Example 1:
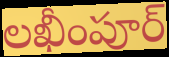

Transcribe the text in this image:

లఖీంపూర్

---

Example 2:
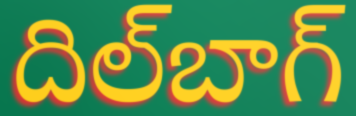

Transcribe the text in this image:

దిల్‌బాగ్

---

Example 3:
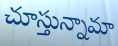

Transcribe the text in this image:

చూస్తున్నామా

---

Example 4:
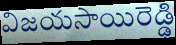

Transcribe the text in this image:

విజయసాయిరెడ్డి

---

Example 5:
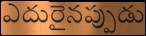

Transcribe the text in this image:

ఎదురైనప్పుడు